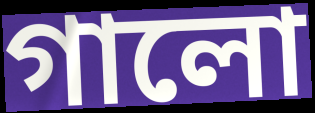
গালো